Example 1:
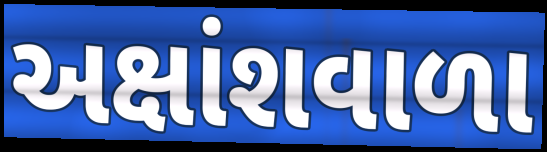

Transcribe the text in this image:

અક્ષાંશવાળા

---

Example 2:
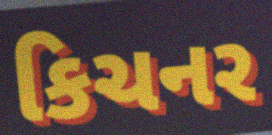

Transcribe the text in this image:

કિચનર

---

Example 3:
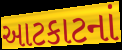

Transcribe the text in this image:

આટકાટનાં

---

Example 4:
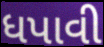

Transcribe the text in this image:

ધપાવી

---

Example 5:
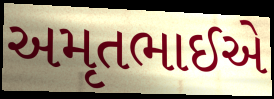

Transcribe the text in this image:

અમૃતભાઈએ